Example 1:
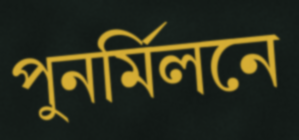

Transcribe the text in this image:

পুনর্মিলনে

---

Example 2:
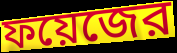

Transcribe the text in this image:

ফয়েজের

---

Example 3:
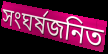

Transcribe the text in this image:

সংঘর্ষজনিত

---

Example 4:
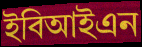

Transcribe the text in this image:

ইবিআইএন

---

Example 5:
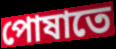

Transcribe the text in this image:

পোষাতে